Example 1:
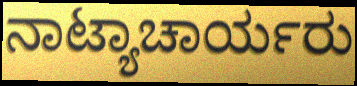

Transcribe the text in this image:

ನಾಟ್ಯಾಚಾರ್ಯರು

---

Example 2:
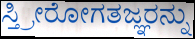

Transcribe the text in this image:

ಸ್ತ್ರೀರೋಗತಜ್ಞರನ್ನು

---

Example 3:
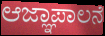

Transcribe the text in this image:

ಆಜ್ಞಾಪಾಲನೆ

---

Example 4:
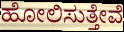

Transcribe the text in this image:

ಹೋಲಿಸುತ್ತೇವೆ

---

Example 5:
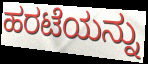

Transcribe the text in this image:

ಹರಟೆಯನ್ನು